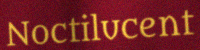
Noctilucent